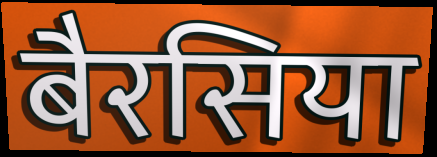
बैरसिया